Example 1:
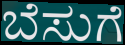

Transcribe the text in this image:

ಬೆಸುಗೆ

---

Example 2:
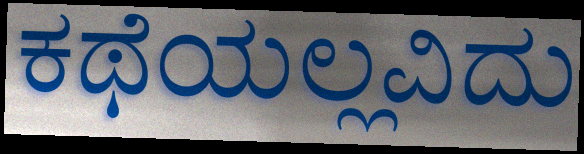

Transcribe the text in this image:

ಕಥೆಯಲ್ಲವಿದು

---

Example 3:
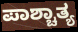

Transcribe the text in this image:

ಪಾಶ್ಚಾತ್ಯ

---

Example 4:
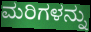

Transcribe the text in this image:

ಮರಿಗಳನ್ನು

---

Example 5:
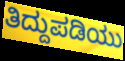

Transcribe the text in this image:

ತಿದ್ದುಪಡಿಯು